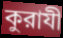
কুরাযী